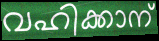
വഹിക്കാന്